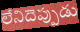
లేనిదెప్పుడు